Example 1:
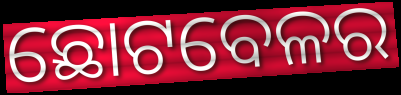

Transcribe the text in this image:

ଛୋଟବେଳର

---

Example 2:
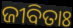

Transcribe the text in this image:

ଜୀବିତାଃ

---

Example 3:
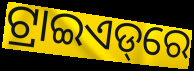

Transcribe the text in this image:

ଟ୍ରାଇଏଡ୍‌ରେ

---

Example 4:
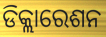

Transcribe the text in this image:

ଡିକ୍ଲାରେଶନ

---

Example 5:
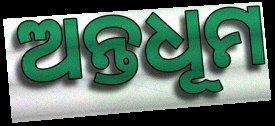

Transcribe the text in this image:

ଅନ୍ତଧୂମ